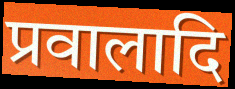
प्रवालादि